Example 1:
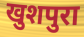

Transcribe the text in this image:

खुशपुरा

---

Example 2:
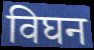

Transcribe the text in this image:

विघन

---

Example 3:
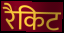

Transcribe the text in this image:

रैकिट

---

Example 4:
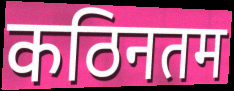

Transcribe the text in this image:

कठिनतम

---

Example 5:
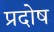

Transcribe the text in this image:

प्रदोष